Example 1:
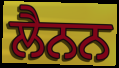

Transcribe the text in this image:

ਲੈਨਨ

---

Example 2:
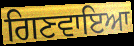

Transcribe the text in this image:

ਗਿਣਵਾਇਆ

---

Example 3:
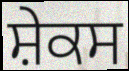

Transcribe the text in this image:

ਸ਼ੇਕਸ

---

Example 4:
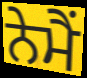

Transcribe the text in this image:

ਨੇਮੈਂ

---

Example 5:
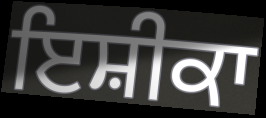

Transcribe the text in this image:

ਇਸ਼ੀਕਾ